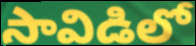
సావిడిలో